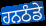
ਹਨਠੰਡੇ